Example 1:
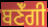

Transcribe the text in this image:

ਬਣੇਁਗੀ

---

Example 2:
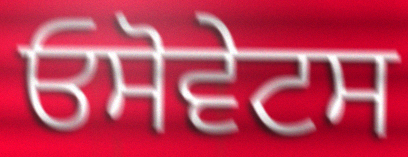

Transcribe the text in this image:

ਓਸੋਵੇਟਸ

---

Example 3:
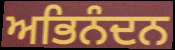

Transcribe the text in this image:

ਅਭਿਨੰਦਨ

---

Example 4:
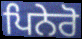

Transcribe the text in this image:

ਪਿਨੇਰੋ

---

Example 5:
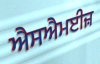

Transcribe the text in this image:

ਐਸਐਮਈਜ਼